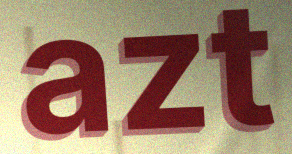
azt